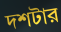
দশটার